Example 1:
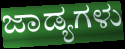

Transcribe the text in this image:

ಜಾಡ್ಯಗಳು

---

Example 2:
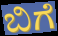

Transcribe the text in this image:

ಬಿಗೆ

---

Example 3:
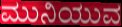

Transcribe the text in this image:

ಮುನಿಯುವ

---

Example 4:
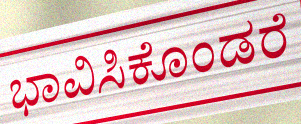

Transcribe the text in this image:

ಭಾವಿಸಿಕೊಂಡರೆ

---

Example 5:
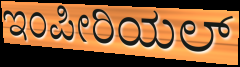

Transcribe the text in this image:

ಇಂಪೀರಿಯಲ್